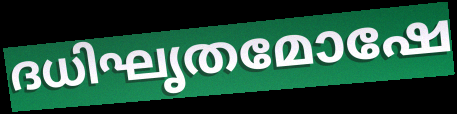
ദധിഘൃതമോഷേ